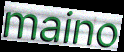
maino